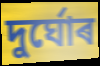
দুৰ্ঘোৰ